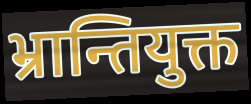
भ्रान्तियुक्त